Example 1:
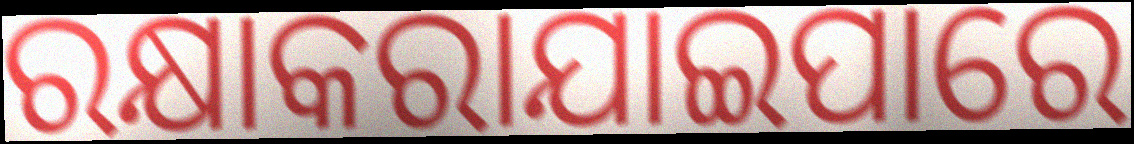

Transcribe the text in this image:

ରକ୍ଷାକରାଯାଇପାରେ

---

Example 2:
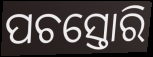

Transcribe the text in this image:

ପଚସ୍ତୋରି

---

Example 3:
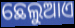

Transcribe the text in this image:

ଛେଲୁଆଏ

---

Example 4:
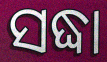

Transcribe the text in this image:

ସଦ୍ଧା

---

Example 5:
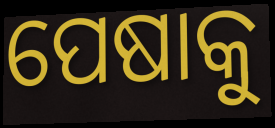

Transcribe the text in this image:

ପେଷାକୁ